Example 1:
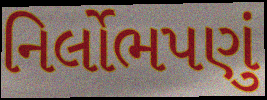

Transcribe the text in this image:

નિર્લોભપણું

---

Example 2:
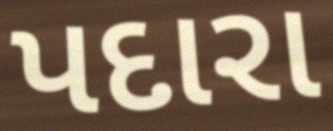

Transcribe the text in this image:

પદારા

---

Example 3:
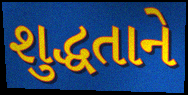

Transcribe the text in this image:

શુદ્ધતાને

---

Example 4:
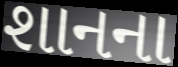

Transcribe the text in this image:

શાનના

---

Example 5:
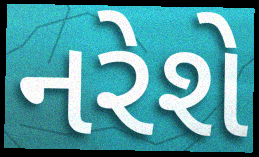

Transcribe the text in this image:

નરેશે